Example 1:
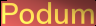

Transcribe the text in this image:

Podum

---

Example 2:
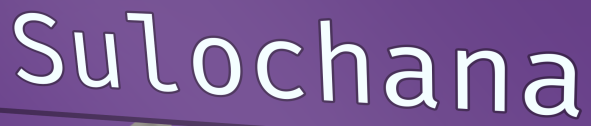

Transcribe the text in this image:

Sulochana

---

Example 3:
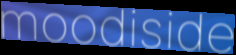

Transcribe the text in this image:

moodiside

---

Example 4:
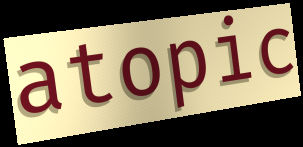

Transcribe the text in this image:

atopic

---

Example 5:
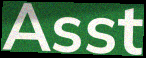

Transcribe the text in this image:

Asst